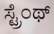
ಸ್ಟ್ರೆಂಥ್